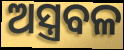
ଅସ୍ତ୍ରବଳ